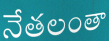
నేతలంతా